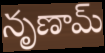
నృణామ్